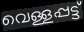
വെള്ളപ്പട്ട്